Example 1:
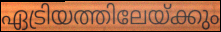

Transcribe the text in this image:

ഏട്രിയത്തിലേയ്ക്കും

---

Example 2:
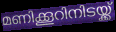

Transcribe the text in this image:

മണിക്കൂറിനിടയ്ക്ക്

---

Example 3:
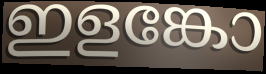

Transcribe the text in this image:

ഇളങ്കോ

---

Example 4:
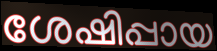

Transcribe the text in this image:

ശേഷിപ്പായ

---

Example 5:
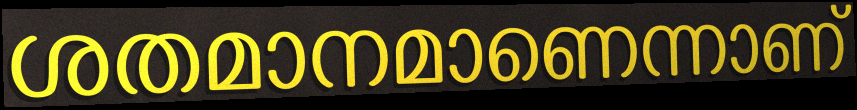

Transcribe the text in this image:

ശതമാനമാണെന്നാണ്